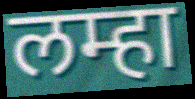
लम्हा